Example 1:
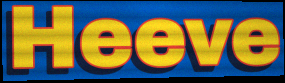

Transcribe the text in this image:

Heeve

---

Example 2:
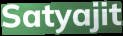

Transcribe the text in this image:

Satyajit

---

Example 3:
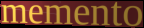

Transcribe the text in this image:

memento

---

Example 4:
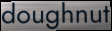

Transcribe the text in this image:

doughnut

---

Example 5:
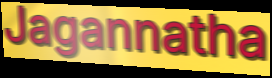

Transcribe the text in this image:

Jagannatha